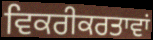
ਵਿਕਰੀਕਰਤਾਵਾਂ